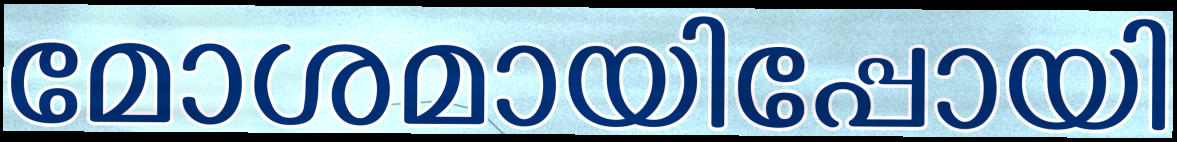
മോശമായിപ്പോയി